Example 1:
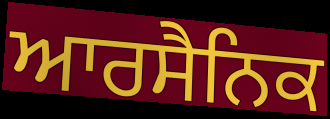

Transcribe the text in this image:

ਆਰਸੈਨਿਕ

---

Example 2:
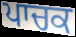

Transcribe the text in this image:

ਪਾਚਕ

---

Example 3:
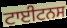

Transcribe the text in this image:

ਟਾਈਟਨਸ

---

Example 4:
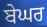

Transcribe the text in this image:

ਬੇਘਰ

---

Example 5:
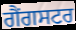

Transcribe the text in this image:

ਗੈਂਗਸਟਰ